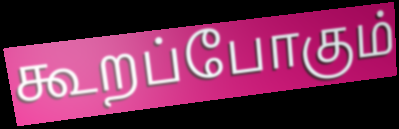
கூறப்போகும்